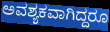
ಅವಶ್ಯಕವಾಗಿದ್ದರೂ